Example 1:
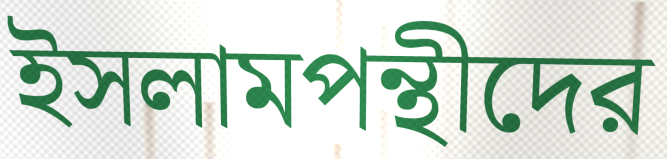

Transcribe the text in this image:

ইসলামপন্থীদের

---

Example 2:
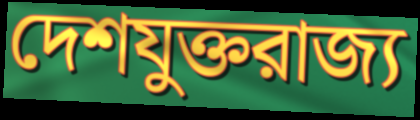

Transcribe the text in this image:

দেশযুক্তরাজ্য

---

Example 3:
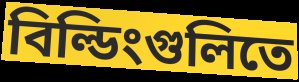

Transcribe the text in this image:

বিল্ডিংগুলিতে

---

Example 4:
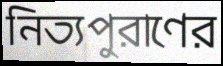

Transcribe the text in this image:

নিত্যপুরাণের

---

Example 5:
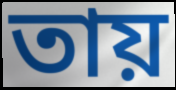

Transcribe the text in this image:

তায়